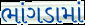
ભાંગડામાં